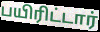
பயிரிட்டார்